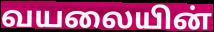
வயலையின்